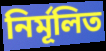
নির্মূলিত